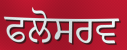
ਫਲੋਸਰਵ